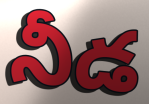
నీడ